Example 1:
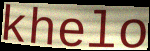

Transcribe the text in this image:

khelo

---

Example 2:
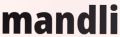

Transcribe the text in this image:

mandli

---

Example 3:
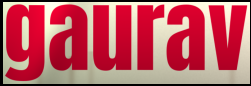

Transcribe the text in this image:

gaurav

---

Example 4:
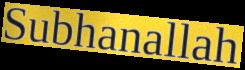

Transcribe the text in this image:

Subhanallah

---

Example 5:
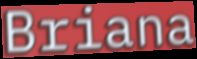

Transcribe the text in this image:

Briana